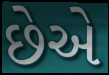
છેએ